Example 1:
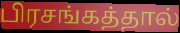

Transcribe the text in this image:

பிரசங்கத்தால்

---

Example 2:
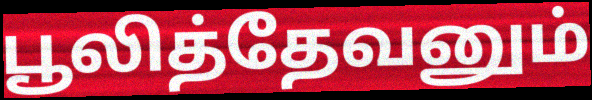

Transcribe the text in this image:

பூலித்தேவனும்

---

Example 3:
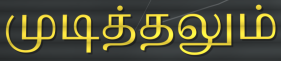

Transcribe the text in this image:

முடித்தலும்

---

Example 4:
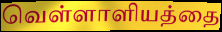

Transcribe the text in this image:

வெள்ளாளியத்தை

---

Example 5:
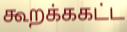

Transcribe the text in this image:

கூறக்ககட்ட